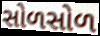
સોળસોળ